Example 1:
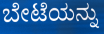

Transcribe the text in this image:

ಬೇಟೆಯನ್ನು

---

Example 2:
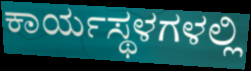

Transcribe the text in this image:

ಕಾರ್ಯಸ್ಥಳಗಳಲ್ಲಿ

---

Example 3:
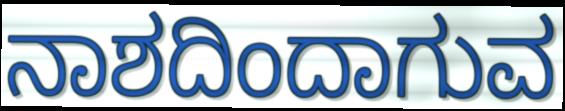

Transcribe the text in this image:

ನಾಶದಿಂದಾಗುವ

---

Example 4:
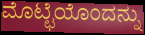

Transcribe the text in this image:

ಮೊಟ್ಟೆಯೊಂದನ್ನು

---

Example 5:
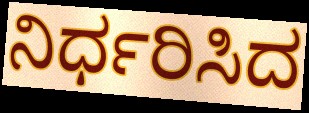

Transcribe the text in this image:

ನಿರ್ಧರಿಸಿದ